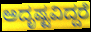
ಅದೃಷ್ಟವಿದ್ದರೆ